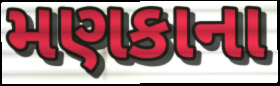
મણકાના